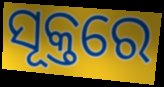
ସୂକ୍ତରେ